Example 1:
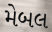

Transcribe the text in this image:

મેબલ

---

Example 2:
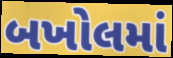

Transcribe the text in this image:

બખોલમાં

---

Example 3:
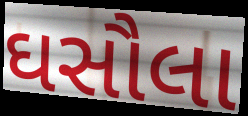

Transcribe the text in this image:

ઘસૌલા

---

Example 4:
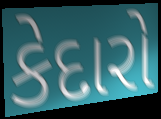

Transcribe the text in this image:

કેદારો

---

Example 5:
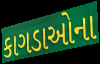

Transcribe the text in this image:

કાગડાઓના